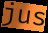
jus